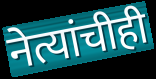
नेत्यांचीही